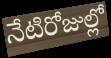
నేటిరోజుల్లో